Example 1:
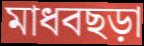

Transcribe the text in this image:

মাধবছড়া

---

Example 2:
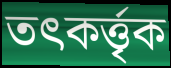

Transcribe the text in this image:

তৎকর্ত্তৃক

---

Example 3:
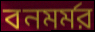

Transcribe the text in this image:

বনমর্মর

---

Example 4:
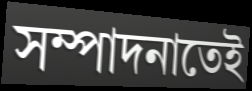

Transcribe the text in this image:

সম্পাদনাতেই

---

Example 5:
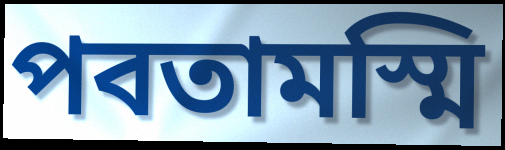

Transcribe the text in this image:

পবতামস্মি